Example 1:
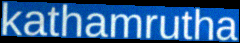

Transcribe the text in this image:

kathamrutha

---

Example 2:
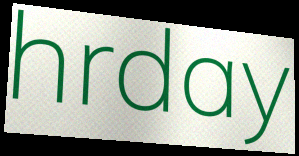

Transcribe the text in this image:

hrday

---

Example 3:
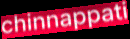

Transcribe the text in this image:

chinnappati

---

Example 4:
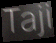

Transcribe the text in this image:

Taji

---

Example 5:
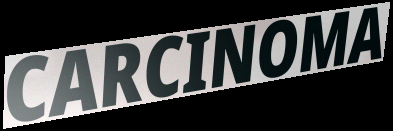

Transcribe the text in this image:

CARCINOMA